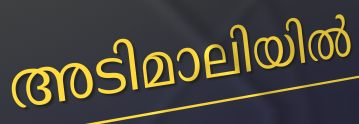
അടിമാലിയിൽ